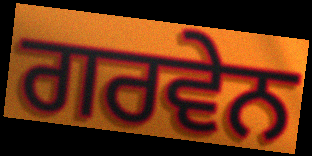
ਗਰਵੇਨ